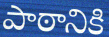
పాఠానికి